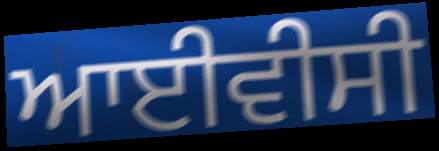
ਆਈਵੀਸੀ